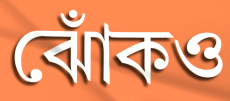
ঝোঁকও